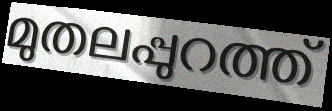
മുതലപ്പുറത്ത്